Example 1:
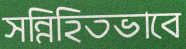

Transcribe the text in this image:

সন্নিহিতভাবে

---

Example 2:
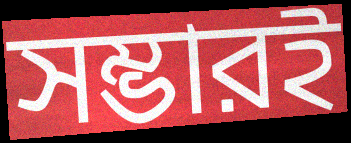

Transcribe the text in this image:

সম্ভারই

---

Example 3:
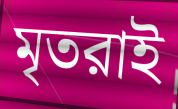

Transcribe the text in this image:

মৃতরাই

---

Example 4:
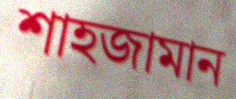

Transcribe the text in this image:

শাহজামান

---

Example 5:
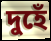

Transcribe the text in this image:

দুহেঁ